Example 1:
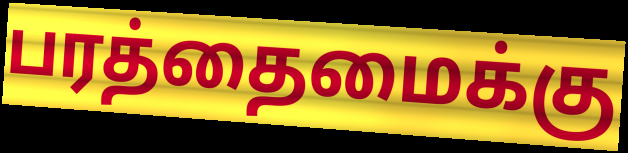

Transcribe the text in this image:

பரத்தைமைக்கு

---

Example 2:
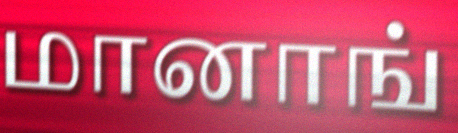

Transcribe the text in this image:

மானாங்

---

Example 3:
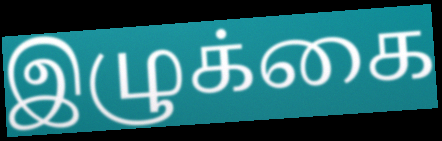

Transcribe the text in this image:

இழுக்கை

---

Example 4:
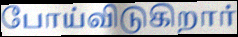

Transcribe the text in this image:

போய்விடுகிறார்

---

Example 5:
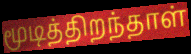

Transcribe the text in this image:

மூடித்திறந்தாள்